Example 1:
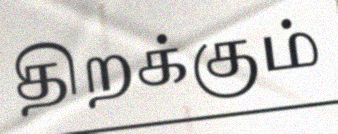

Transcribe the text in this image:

திறக்கும்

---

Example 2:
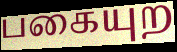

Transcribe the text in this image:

பகையுற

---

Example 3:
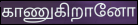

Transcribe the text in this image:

காணுகிறானோ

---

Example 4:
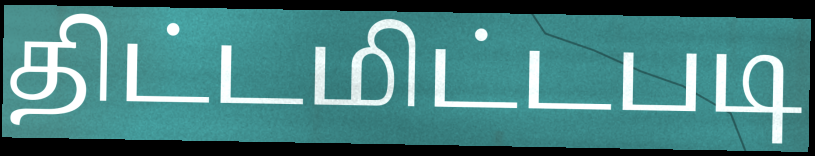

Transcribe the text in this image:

திட்டமிட்டபடி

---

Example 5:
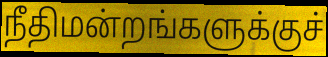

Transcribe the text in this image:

நீதிமன்றங்களுக்குச்